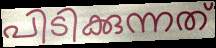
പിടിക്കുന്നത്